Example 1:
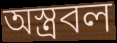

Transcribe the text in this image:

অস্ত্রবল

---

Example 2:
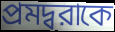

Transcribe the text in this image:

প্রমদ্বরাকে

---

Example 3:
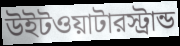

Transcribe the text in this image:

উইটওয়াটারস্ট্রান্ড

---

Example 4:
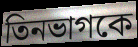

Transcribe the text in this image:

তিনভাগকে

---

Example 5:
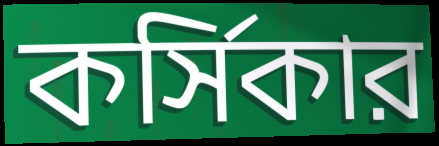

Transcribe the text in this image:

কর্সিকার